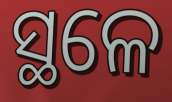
ସ୍ଥଳେ